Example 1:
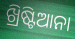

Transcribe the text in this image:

ଖ୍ରିଷ୍ଟିଆନା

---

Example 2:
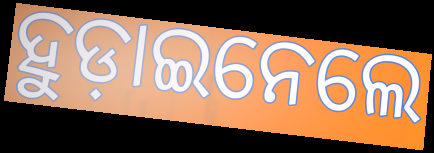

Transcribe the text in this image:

ହୁଡ଼ାଇନେଲେ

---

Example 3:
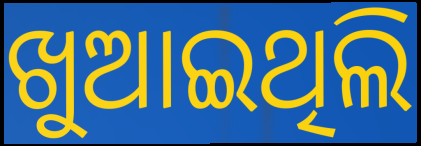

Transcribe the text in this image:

ଖୁଆଇଥିଲି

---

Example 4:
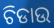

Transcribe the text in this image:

ଚିଡାଉ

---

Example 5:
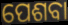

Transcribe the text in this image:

ପେଶବା